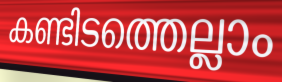
കണ്ടിടത്തെല്ലാം